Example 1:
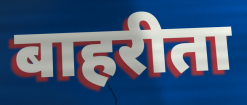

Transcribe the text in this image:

बाहरीता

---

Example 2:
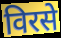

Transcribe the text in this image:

विरसे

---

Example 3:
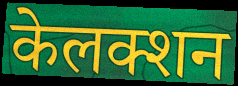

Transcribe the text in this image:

केलक्शन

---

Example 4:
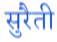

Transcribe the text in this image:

सुरैती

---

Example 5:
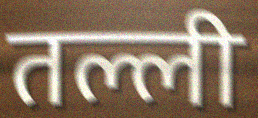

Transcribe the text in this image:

तल्ली